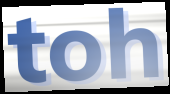
toh